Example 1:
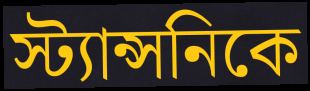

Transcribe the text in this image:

স্ট্যান্সনিকে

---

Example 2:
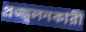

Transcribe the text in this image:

প্রজ্জ্বলনকারী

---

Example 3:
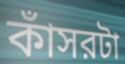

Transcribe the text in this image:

কাঁসরটা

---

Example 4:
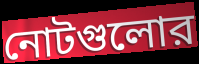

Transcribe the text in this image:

নোটগুলোর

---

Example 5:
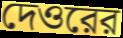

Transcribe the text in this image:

দেওরের